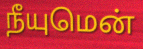
நீயுமென்